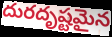
దురదృష్టమైన